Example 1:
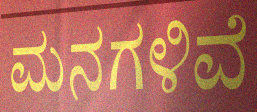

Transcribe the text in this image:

ಮನಗಳಿವೆ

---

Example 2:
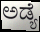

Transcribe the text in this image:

ಅಡ್ಯೆ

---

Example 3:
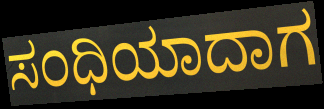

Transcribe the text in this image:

ಸಂಧಿಯಾದಾಗ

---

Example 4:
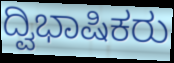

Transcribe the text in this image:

ದ್ವಿಭಾಷಿಕರು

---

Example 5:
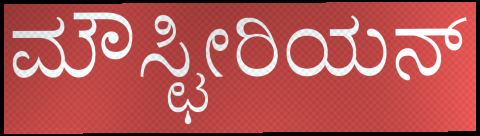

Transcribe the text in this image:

ಮೌಸ್ಟೀರಿಯನ್